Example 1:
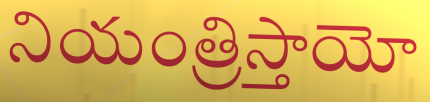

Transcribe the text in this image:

నియంత్రిస్తాయో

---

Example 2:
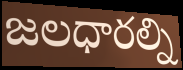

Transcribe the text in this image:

జలధారల్ని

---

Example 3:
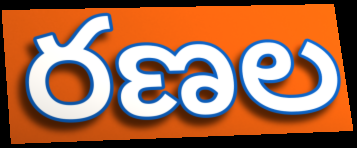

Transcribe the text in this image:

రణల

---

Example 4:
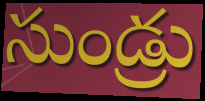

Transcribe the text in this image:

సుండ్రు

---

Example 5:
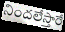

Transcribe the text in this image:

నిందలేస్తారే